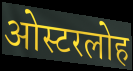
ओस्टरलोह